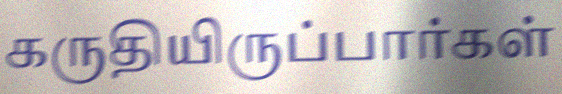
கருதியிருப்பார்கள்